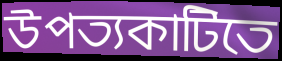
উপত্যকাটিতে